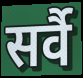
सर्वै